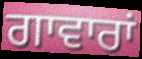
ਗਾਵਾਰਾਂ